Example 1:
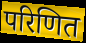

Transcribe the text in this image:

परिणित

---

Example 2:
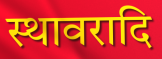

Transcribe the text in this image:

स्थावरादि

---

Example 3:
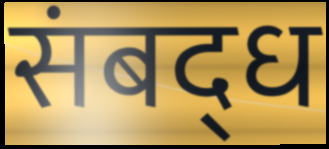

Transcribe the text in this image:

संबद्ध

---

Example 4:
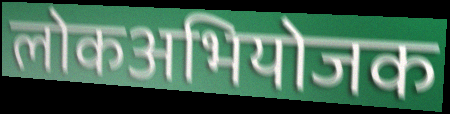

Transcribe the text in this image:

लोकअभियोजक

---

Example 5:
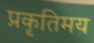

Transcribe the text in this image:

प्रकृतिमय